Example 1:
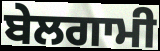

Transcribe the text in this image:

ਬੇਲਗਾਮੀ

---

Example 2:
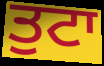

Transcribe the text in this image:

ਤੁਟਾ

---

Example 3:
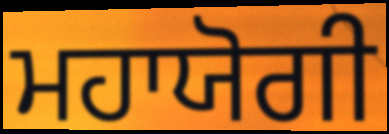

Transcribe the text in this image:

ਮਹਾਯੋਗੀ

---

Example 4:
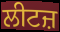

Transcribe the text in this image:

ਲੀਟਜ਼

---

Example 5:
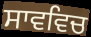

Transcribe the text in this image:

ਸਾਵਵਿਚ